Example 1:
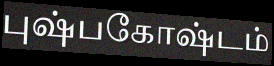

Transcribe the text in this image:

புஷ்பகோஷ்டம்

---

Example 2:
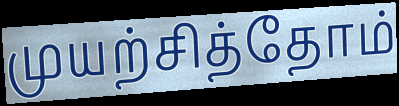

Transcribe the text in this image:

முயற்சித்தோம்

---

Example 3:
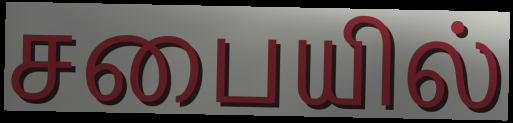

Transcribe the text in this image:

சபையில்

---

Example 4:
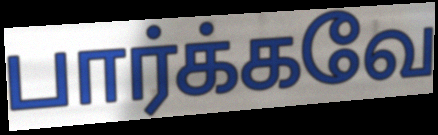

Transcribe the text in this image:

பார்க்கவே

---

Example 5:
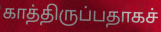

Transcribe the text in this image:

காத்திருப்பதாகச்